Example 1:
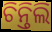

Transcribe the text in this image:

ଚିନ୍ତିଲି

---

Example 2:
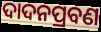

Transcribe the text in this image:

ଦାଦନପ୍ରବଣ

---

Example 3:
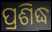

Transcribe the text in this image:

ପ୍ରଶିଦ୍ଧ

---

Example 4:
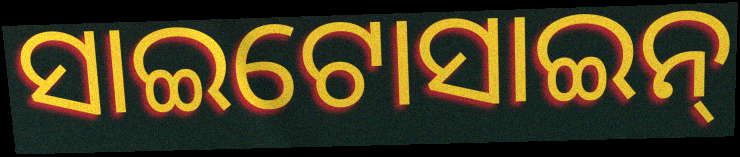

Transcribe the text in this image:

ସାଇଟୋସାଇନ୍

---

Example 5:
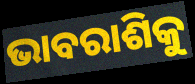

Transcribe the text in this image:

ଭାବରାଶିକୁ